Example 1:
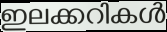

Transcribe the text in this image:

ഇലക്കറികൾ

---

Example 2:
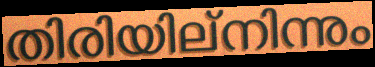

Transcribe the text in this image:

തിരിയില്നിന്നും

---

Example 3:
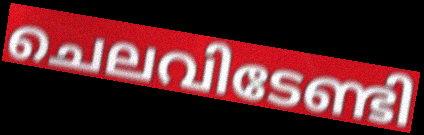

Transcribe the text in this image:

ചെലവിടേണ്ടി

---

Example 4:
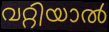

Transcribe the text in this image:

വറ്റിയാൽ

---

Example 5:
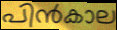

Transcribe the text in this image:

പിൻകാല